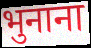
भुनाना